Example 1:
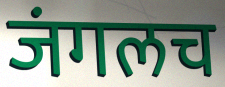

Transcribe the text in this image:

जंगलच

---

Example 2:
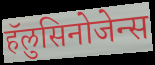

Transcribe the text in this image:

हॅलुसिनोजेन्स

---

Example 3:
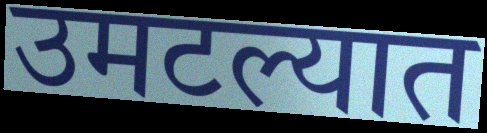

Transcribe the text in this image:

उमटल्यात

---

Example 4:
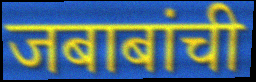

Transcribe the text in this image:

जबाबांची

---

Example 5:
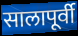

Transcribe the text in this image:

सालापूर्वी